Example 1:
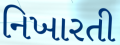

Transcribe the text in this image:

નિખારતી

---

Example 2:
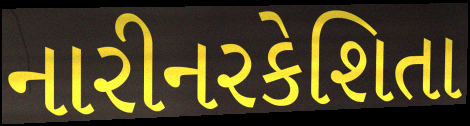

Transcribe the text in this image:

નારીનરકેશિતા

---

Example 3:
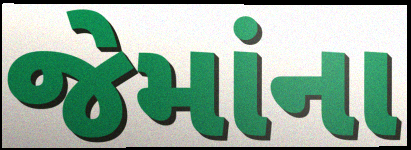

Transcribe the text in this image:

જેમાંના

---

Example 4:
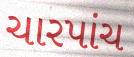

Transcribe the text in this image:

ચારપાંચ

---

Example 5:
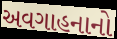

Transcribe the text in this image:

અવગાહનાનો